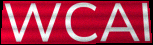
WCAI